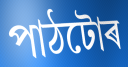
পাঠটোৰ